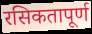
रसिकतापूर्ण